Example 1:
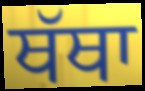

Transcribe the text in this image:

ਥੱਥਾ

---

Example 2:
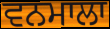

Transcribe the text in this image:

ਵਨਮਾਲਾ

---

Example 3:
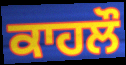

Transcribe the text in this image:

ਕਾਹਲੌ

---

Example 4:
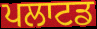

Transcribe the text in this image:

ਪਲਾਟਡ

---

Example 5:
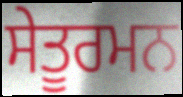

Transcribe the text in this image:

ਸੇਤੂਰਮਨ